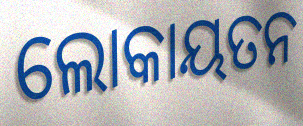
ଲୋକାୟତନ